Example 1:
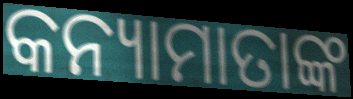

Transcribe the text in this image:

କନ୍ୟାମାତାଙ୍କ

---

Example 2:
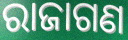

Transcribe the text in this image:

ରାଜାଗଣ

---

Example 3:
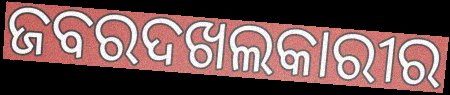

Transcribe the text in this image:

ଜବରଦଖଲକାରୀର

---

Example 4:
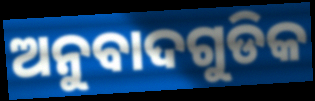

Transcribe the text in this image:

ଅନୁବାଦଗୁଡିକ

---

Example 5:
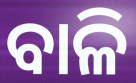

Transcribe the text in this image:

ବାଳି